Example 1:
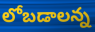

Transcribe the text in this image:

లోబడాలన్న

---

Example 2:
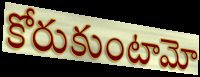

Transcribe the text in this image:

కోరుకుంటామో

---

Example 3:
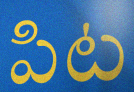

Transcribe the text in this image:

పిట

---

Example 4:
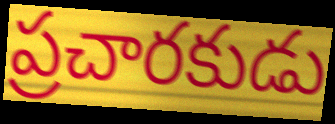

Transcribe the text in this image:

ప్రచారకుడు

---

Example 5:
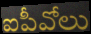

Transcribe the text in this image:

ఐపీవోలు